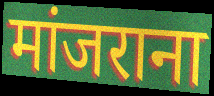
मांजराना